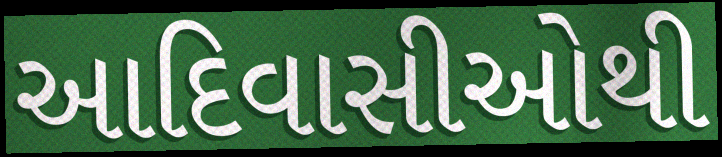
આદિવાસીઓથી